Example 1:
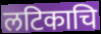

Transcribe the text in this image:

लटिकाचि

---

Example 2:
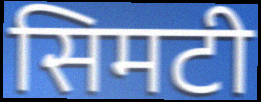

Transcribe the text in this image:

सिमटी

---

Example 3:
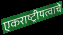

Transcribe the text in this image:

एकराष्ट्रीयत्वाचे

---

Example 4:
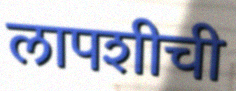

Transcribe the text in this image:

लापशीची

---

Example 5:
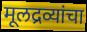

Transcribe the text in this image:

मूलद्रव्यांचा